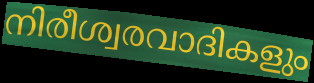
നിരീശ്വരവാദികളും